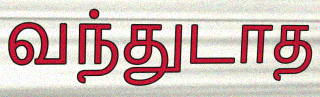
வந்துடாத